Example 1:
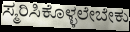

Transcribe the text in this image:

ಸ್ಮರಿಸಿಕೊಳ್ಳಲೇಬೇಕು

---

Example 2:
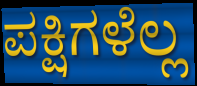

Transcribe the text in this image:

ಪಕ್ಷಿಗಳೆಲ್ಲ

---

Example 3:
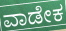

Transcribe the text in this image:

ವಾಡೇಕ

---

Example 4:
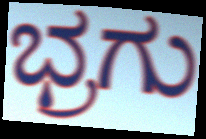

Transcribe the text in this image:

ಭ್ರಗು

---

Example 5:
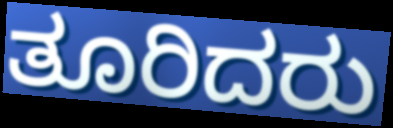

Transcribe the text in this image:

ತೂರಿದರು